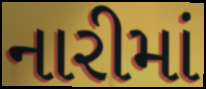
નારીમાં